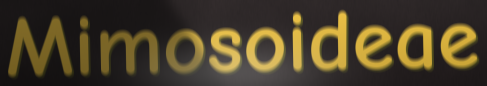
Mimosoideae